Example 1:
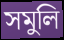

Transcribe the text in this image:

সমুলি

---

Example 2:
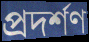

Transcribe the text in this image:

প্ৰদৰ্শণ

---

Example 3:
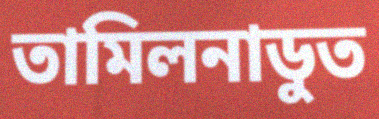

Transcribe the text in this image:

তামিলনাডুত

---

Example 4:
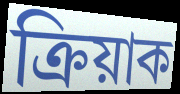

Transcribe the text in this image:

ক্ৰিয়াক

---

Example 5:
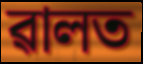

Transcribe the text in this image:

ৱালত